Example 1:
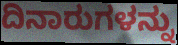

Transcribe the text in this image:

ದಿನಾರುಗಳನ್ನು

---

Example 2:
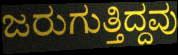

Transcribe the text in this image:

ಜರುಗುತ್ತಿದ್ದವು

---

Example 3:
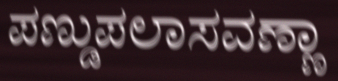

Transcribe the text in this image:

ಪಣ್ಡುಪಲಾಸವಣ್ಣಾ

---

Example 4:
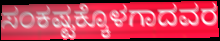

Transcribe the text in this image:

ಸಂಕಷ್ಟಕ್ಕೊಳಗಾದವರ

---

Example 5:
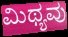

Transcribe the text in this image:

ಮಿಥ್ಯವು